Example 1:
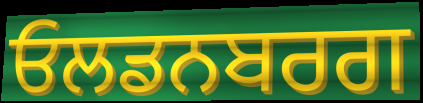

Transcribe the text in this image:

ਓਲਡਨਬਰਗ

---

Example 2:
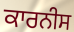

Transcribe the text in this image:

ਕਾਰਨੀਸ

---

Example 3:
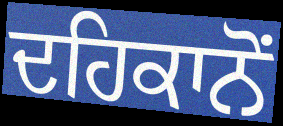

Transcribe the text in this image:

ਦਹਿਕਾਨੋਂ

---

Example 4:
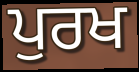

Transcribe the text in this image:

ਪੁਰਖ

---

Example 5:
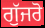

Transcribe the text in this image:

ਗੁੱਜਰੋ